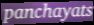
panchayats